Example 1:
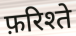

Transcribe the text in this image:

फ़रिश्ते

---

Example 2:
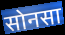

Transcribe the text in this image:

सोनसा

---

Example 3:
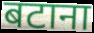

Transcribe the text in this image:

बटाना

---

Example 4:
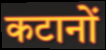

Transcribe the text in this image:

कटानों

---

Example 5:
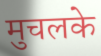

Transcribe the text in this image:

मुचलके